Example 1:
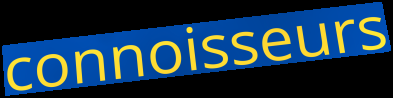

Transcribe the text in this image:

connoisseurs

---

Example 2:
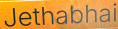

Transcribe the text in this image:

Jethabhai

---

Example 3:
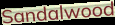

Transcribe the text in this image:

Sandalwood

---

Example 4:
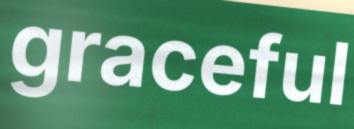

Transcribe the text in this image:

graceful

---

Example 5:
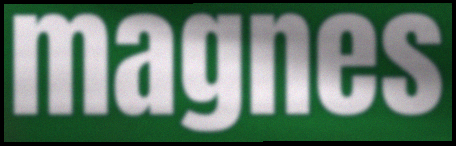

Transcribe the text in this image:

magnes